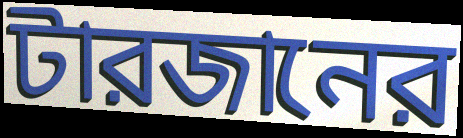
টারজানের